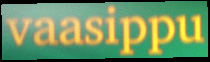
vaasippu